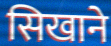
सिखाने